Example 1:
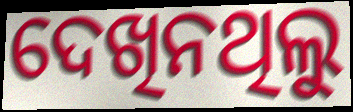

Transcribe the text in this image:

ଦେଖିନଥିଲୁ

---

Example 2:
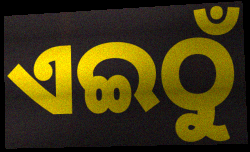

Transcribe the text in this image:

ଏଇଠୁଁ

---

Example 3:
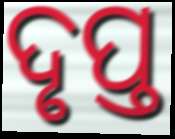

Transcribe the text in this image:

ଦୃପ୍ତ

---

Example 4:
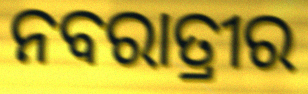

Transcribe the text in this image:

ନବରାତ୍ରୀର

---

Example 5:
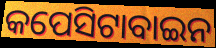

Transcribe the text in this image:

କପେସିଟାବାଇନ